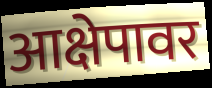
आक्षेपावर